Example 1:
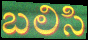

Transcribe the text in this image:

బలిసి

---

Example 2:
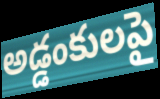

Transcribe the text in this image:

అడ్డంకులపై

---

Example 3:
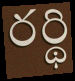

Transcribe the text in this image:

రర్థి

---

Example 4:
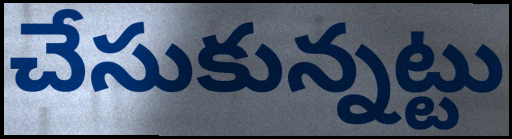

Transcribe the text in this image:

చేసుకున్నట్టు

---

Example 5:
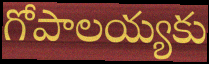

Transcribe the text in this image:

గోపాలయ్యకు